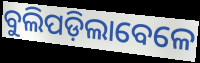
ବୁଲିପଡ଼ିଲାବେଳେ